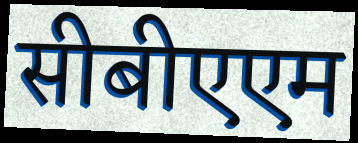
सीबीएएम